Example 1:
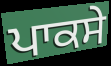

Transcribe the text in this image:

ਪਾਕਸੇ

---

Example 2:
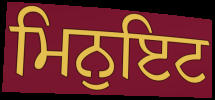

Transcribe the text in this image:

ਮਿਨੁਇਟ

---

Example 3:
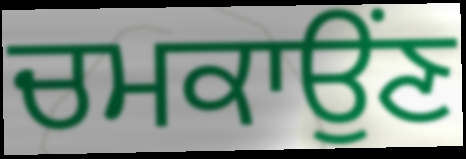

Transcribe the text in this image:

ਚਮਕਾਉਂਣ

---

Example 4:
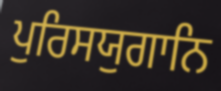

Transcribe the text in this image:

ਪੁਰਿਸਯੁਗਾਨਿ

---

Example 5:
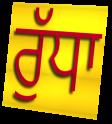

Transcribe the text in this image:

ਰੁੱਧਾ